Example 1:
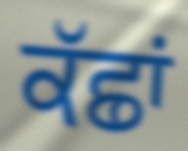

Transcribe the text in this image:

ਕੱਛਾਂ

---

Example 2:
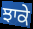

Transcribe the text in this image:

ਝਾਕੇ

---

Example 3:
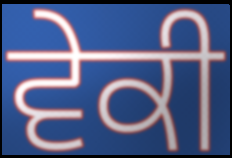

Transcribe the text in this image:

ਵੇਕੀ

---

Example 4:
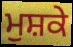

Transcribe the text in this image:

ਮੁਸ਼ਕੇ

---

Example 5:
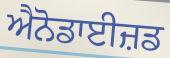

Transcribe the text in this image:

ਐਨੋਡਾਈਜ਼ਡ